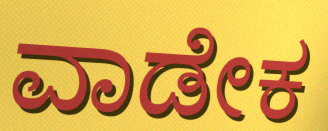
ವಾಡೇಕ